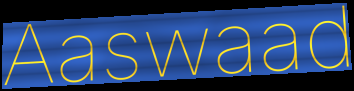
Aaswaad